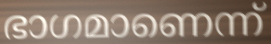
ഭാഗമാണെന്ന്